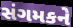
સંગમકને